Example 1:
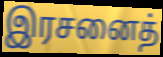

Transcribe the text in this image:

இரசனைத்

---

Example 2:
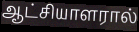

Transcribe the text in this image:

ஆட்சியாளரால்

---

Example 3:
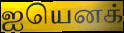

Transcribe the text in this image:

ஐயெனக்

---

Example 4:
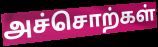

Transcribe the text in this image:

அச்சொற்கள்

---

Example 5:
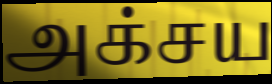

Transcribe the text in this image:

அக்சய